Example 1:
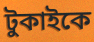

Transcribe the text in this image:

টুকাইকে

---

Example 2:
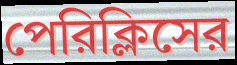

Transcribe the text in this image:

পেরিক্লিসের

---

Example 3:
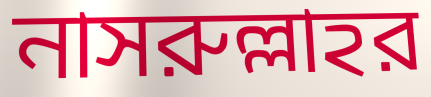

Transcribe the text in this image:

নাসরুল্লাহর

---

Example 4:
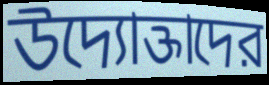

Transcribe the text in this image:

উদ্যোক্তাদের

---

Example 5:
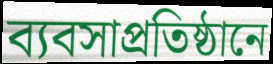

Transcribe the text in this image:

ব্যবসাপ্রতিষ্ঠানে